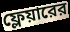
ফ্লেয়ারের